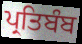
ਪ੍ਰਤਿਬੰਬ